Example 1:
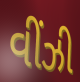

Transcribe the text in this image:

વીંઝી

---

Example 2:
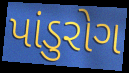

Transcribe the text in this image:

પાંડુરોગ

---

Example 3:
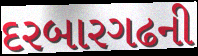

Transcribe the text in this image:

દરબારગઢની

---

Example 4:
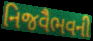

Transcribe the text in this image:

નિજવૈભવની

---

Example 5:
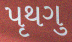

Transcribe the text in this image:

પૃથગુ